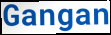
Gangan